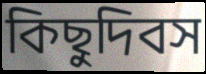
কিছুদিবস